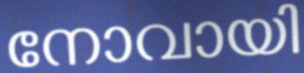
നോവായി